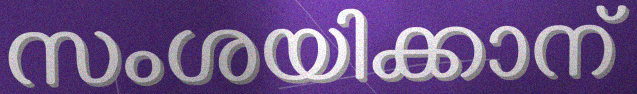
സംശയിക്കാന്